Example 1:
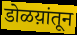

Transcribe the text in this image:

डोळय़ांतून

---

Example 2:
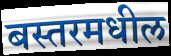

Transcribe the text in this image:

बस्तरमधील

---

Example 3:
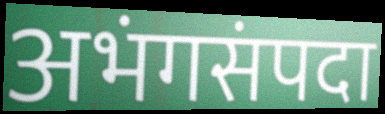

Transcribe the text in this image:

अभंगसंपदा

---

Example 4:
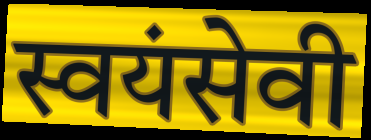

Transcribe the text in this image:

स्वयंसेवी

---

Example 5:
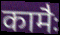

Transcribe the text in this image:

कामैः